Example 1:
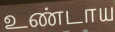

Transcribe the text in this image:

உண்டாய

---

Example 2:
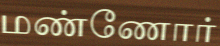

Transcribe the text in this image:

மண்ணோர்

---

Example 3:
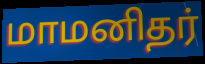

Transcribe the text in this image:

மாமனிதர்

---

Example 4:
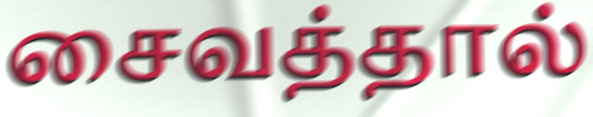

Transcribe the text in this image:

சைவத்தால்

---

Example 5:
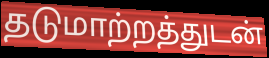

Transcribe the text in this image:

தடுமாற்றத்துடன்